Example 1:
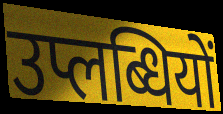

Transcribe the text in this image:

उप्लब्धियों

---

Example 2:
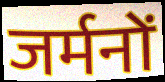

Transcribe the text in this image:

जर्मनों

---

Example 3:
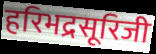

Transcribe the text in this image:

हरिभद्रसूरिजी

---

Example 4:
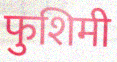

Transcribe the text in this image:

फुशिमी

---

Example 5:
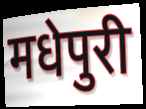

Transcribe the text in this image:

मधेपुरी